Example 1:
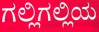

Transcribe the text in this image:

ಗಲ್ಲಿಗಲ್ಲಿಯ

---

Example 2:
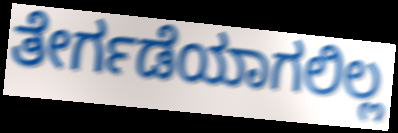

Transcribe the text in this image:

ತೇರ್ಗಡೆಯಾಗಲಿಲ್ಲ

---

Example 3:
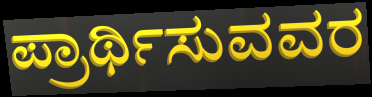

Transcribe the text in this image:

ಪ್ರಾರ್ಥಿಸುವವರ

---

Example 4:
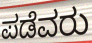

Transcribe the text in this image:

ಪಡೆವರು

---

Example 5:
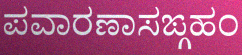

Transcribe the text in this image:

ಪವಾರಣಾಸಙ್ಗಹಂ